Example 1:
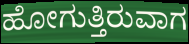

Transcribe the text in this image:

ಹೋಗುತ್ತಿರುವಾಗ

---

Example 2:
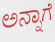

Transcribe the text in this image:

ಅನ್ನಾಗೆ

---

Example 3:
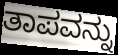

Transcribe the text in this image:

ತಾಪವನ್ನು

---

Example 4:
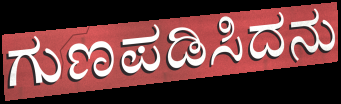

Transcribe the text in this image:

ಗುಣಪಡಿಸಿದನು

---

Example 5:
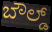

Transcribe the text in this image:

ಬೌಲ್ಡ್